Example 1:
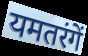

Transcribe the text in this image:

यमतरंगें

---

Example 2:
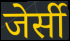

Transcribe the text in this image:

जेर्सी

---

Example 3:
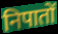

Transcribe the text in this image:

निपातों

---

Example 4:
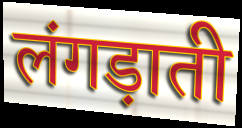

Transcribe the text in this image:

लंगड़ाती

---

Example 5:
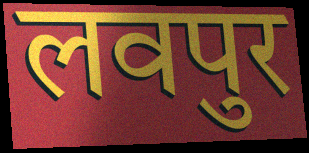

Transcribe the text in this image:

लवपुर